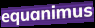
equanimus